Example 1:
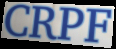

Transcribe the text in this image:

CRPF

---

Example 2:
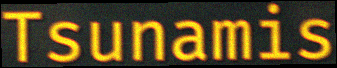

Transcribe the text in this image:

Tsunamis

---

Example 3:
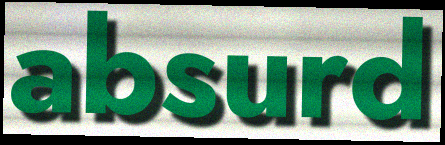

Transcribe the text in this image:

absurd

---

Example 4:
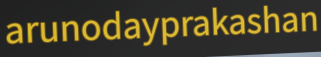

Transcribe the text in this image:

arunodayprakashan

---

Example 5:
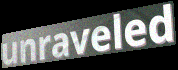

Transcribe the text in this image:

unraveled